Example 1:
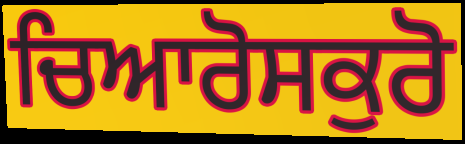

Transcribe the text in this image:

ਚਿਆਰੋਸਕੁਰੋ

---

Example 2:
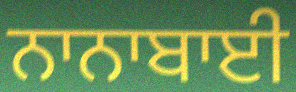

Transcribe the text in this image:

ਨਾਨਾਬਾਈ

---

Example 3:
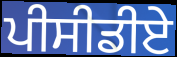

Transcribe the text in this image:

ਪੀਸੀਡੀਏ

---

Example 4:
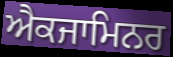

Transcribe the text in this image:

ਐਕਜਾਮਿਨਰ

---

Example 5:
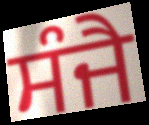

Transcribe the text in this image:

ਸੰਜੈ